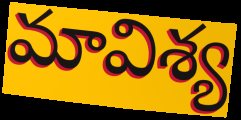
మావిశ్య